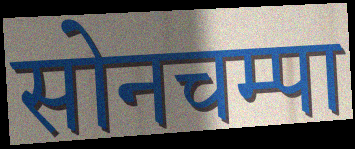
सोनचम्पा